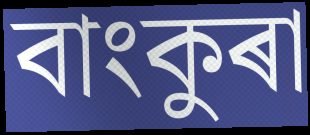
বাংকুৰা